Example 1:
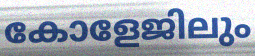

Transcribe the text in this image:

കോളേജിലും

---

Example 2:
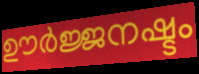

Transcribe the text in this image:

ഊർജ്ജനഷ്ടം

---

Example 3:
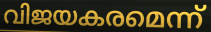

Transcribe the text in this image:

വിജയകരമെന്ന്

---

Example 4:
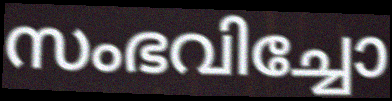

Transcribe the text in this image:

സംഭവിച്ചോ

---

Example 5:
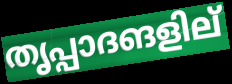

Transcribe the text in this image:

തൃപ്പാദങളില്